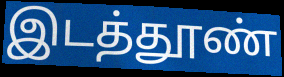
இடத்தூண்